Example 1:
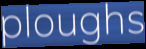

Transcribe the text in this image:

ploughs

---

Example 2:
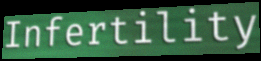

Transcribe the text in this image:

Infertility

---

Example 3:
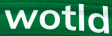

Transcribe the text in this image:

wotld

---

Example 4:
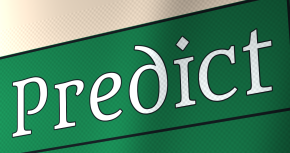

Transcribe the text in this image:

Predict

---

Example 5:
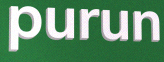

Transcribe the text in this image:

purun